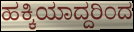
ಹಕ್ಕಿಯಾದ್ದರಿಂದ